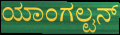
ಯಾಂಗಲ್ಟನ್